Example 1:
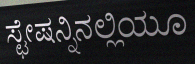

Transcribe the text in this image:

ಸ್ಟೇಷನ್ನಿನಲ್ಲಿಯೂ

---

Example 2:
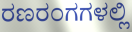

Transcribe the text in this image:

ರಣರಂಗಗಳಲ್ಲಿ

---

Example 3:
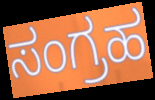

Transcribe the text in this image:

ಸಂಗ್ರಹ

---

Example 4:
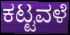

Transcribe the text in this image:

ಕಟ್ಟವಳೆ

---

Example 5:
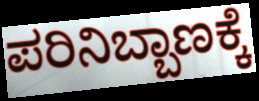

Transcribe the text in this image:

ಪರಿನಿಬ್ಬಾಣಕ್ಕೆ